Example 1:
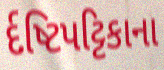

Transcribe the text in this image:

ર્દષ્ટિપટ્ટિકાના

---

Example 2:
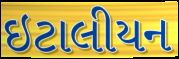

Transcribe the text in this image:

ઇટાલીયન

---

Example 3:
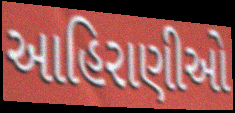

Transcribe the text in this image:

આહિરાણીઓ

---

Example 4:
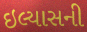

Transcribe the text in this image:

ઇલ્યાસની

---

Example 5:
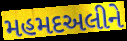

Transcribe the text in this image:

મહમદઅલીને